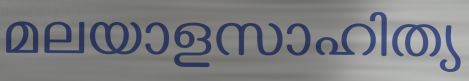
മലയാളസാഹിത്യ